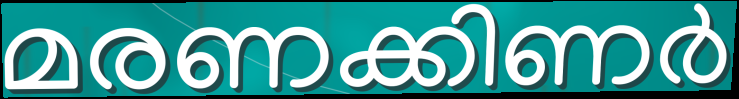
മരണക്കിണർ